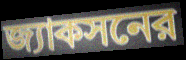
জ্যাকসনের